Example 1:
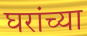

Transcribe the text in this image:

घरांच्या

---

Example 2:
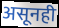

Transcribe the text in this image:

असूनही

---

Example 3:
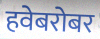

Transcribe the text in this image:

हवेबरोबर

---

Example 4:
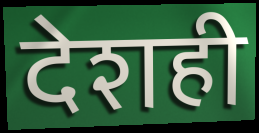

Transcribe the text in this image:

देशही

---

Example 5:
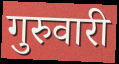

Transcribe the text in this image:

गुरुवारी